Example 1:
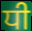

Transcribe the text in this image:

ਧੀ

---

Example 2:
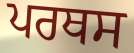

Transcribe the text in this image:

ਪਰਥਸ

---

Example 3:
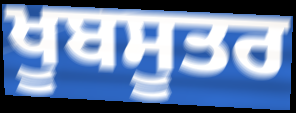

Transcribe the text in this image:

ਖੂਬਸੂਤਰ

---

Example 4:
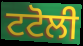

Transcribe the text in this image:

ਟਟੋਲੀ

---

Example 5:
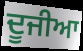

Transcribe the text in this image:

ਦੂਜੀਆ